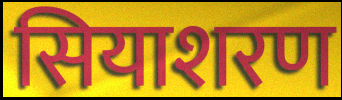
सियाशरण